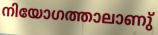
നിയോഗത്താലാണു്